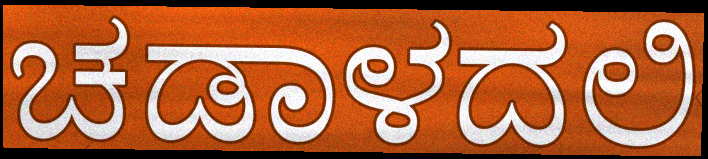
ಚಡಾಳದಲಿ